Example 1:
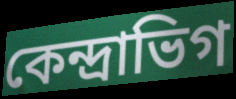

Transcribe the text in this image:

কেন্দ্রাভিগ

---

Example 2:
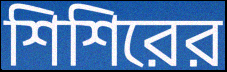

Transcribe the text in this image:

শিশিরের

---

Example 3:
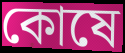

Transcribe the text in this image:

কোষে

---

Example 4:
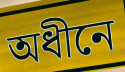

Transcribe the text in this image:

অধীনে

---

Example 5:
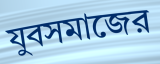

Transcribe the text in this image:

যুবসমাজের